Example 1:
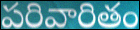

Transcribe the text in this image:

పరివారితం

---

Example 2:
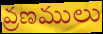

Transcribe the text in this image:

వ్రణములు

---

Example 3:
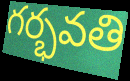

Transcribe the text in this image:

గర్భవతి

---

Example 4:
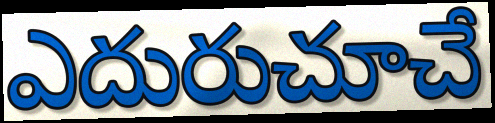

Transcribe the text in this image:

ఎదురుచూచే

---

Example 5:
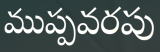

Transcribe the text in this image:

ముప్పవరపు